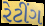
રેટીંગ